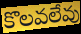
కొలవలేవు